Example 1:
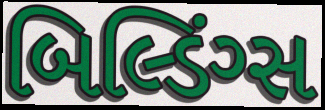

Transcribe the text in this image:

બિલ્ડિંગ્સ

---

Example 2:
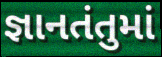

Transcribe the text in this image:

જ્ઞાનતંતુમાં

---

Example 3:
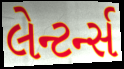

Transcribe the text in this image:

લેન્ટર્ન્સ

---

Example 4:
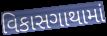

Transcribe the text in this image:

વિકાસગાથામાં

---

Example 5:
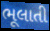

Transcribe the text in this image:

ભૂલાતી